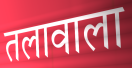
तलावाला